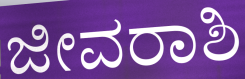
ಜೀವರಾಶಿ